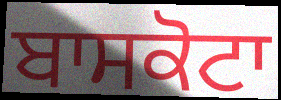
ਬਾਸਕੋਟਾ